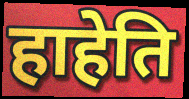
हाहेति